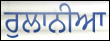
ਰੁਲਾਨੀਆ